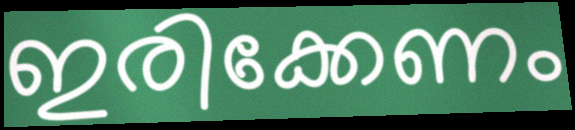
ഇരിക്കേണം